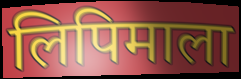
लिपिमाला